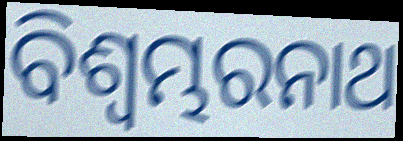
ବିଶ୍ୱମ୍ଭରନାଥ